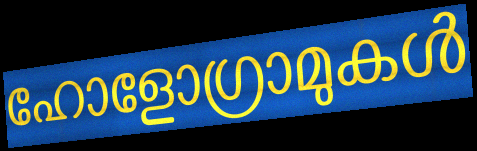
ഹോളോഗ്രാമുകൾ